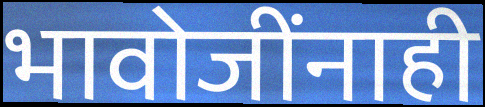
भावोजींनाही